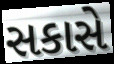
સકાસે